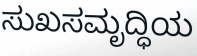
ಸುಖಸಮೃದ್ಧಿಯ